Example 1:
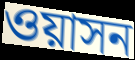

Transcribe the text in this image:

ওয়াসন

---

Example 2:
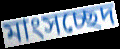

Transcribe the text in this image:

মাংসচ্ছেদ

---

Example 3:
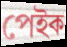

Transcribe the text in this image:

পেইক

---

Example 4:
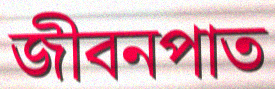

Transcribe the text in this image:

জীবনপাত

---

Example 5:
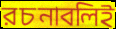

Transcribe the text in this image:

রচনাবলিই